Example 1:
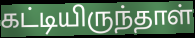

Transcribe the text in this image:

கட்டியிருந்தாள்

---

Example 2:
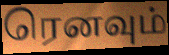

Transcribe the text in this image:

ரெனவும்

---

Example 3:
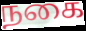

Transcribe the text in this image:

நகை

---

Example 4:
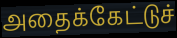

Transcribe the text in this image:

அதைக்கேட்டுச்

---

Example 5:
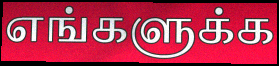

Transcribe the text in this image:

எங்களுக்க